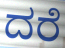
ದರೆ